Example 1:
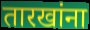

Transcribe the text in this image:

तारखांना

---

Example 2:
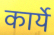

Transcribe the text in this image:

कार्ये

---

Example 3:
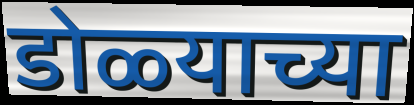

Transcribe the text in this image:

डोळ्याच्या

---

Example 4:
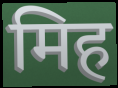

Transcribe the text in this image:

मिह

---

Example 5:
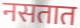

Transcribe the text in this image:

नसतात